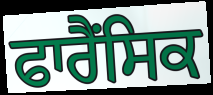
ਫਾਰੈਂਸਿਕ